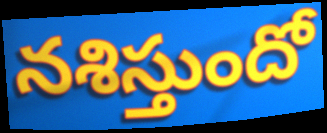
నశిస్తుందో